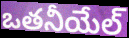
ఒతనీయేల్